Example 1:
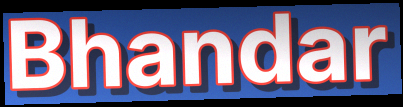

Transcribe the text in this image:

Bhandar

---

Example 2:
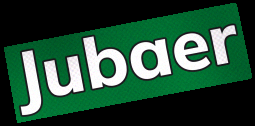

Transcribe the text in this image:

Jubaer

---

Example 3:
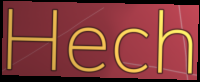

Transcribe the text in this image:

Hech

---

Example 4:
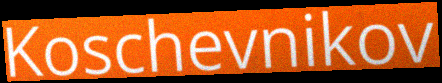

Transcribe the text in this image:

Koschevnikov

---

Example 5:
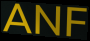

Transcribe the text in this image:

ANF